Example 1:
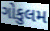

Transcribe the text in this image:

ગોકુલમ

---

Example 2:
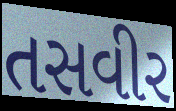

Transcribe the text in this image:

તસવીર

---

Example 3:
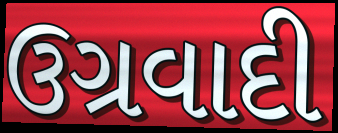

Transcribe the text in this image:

ઉગ્રવાદી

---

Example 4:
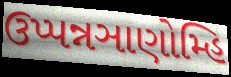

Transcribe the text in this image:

ઉપ્પન્નઞાણોમ્હિ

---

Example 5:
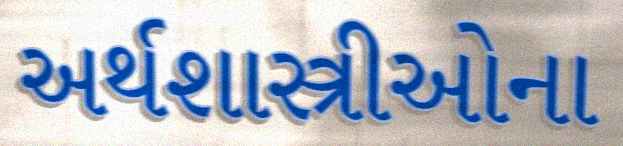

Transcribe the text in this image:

અર્થશાસ્ત્રીઓના